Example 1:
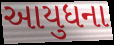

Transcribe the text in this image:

આયુધના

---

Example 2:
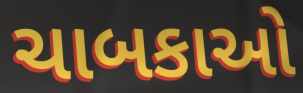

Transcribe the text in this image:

ચાબકાઓ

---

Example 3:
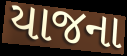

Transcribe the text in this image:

યાજના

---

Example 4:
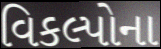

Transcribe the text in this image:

વિકલ્પોના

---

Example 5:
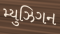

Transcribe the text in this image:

મ્યુઝિગન